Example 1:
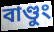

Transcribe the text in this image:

বাণ্ডুং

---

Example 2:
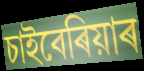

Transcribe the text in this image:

চাইবেৰিয়াৰ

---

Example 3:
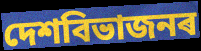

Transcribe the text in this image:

দেশবিভাজনৰ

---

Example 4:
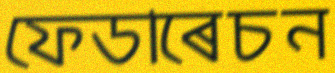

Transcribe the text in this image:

ফেডাৰেচন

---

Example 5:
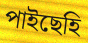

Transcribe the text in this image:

পাইছেহি